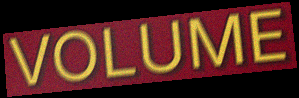
VOLUME